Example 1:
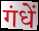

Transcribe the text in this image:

गंधें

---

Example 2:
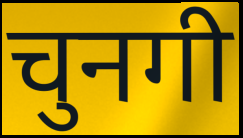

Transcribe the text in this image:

चुनगी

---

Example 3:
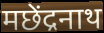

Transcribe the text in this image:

मछेंद्रनाथ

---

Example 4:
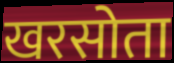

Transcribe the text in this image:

खरसोता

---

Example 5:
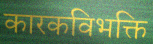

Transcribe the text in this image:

कारकविभक्ति